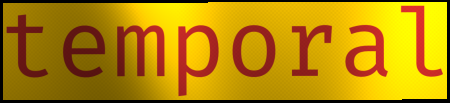
temporal